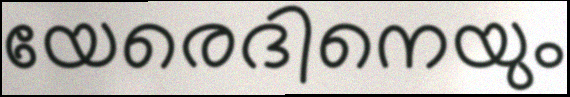
യേരെദിനെയും